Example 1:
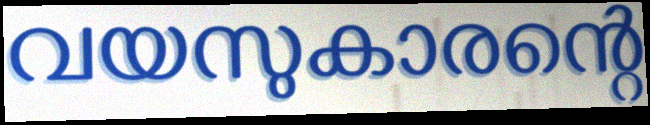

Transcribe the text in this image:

വയസുകാരന്റെ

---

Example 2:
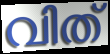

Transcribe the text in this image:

വിത്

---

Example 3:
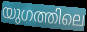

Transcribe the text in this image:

യുഗത്തിലെ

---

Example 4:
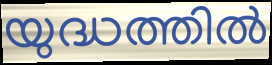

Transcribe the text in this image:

യുദ്ധത്തിൽ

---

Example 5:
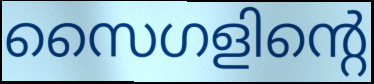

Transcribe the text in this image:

സൈഗളിന്റെ